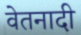
वेतनादी